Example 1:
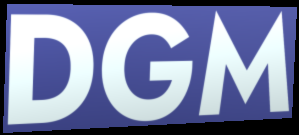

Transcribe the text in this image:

DGM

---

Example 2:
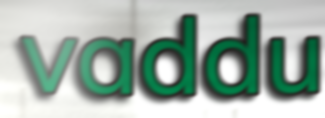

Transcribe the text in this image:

vaddu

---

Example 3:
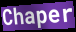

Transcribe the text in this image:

Chaper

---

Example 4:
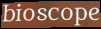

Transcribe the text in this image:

bioscope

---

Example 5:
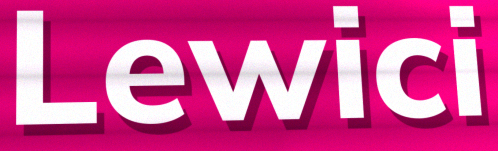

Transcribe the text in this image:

Lewici